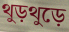
থুড়থুড়ে